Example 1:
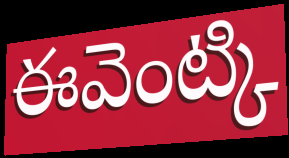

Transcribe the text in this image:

ఈవెంట్కి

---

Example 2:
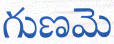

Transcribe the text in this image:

గుణమె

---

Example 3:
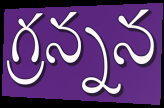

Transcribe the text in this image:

గ్రన్నన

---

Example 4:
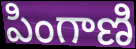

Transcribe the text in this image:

పింగాణి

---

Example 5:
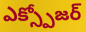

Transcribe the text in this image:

ఎక్స్పోజర్